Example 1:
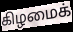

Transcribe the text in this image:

கிழமைக்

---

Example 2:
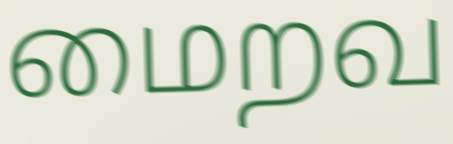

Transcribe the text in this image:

மைறவ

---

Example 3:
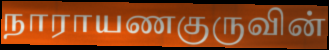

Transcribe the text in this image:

நாராயணகுருவின்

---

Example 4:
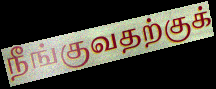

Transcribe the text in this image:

நீங்குவதற்குக்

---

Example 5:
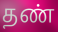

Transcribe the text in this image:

தண்